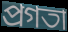
প্রগতা